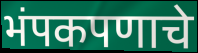
भंपकपणाचे